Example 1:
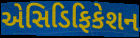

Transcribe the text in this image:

એસિડિફિકેશન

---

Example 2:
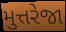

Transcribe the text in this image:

મુત્તરેજા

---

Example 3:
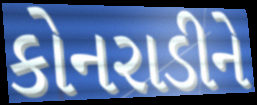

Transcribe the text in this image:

કોનરાડીને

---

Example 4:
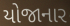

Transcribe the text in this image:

યોજાનાર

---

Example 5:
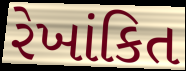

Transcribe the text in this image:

રેખાંકિત